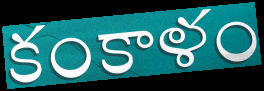
కంకాళం